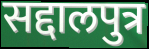
सद्दालपुत्र